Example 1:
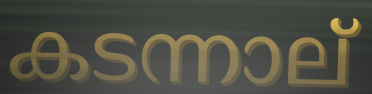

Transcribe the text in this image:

കടന്നാല്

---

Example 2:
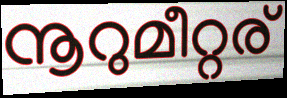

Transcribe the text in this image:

നൂറുമീറ്റര്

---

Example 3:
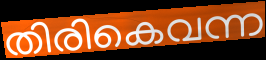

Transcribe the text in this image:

തിരികെവന്ന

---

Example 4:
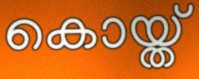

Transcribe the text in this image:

കൊയ്ത്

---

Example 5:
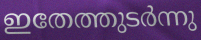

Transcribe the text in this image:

ഇതേത്തുടർന്നു